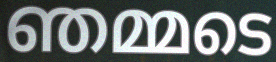
ഞമ്മടെ